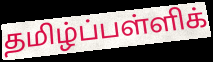
தமிழ்ப்பள்ளிக்